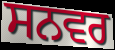
ਸਨਵਰ